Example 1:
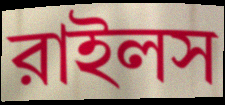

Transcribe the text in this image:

রাইলস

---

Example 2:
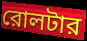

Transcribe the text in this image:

রোলটার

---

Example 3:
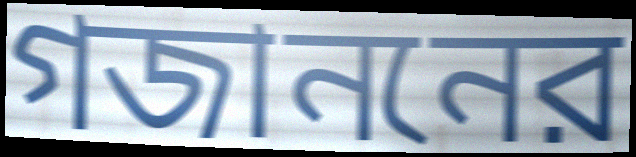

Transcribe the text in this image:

গজাননের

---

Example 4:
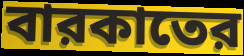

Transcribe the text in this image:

বারকাতের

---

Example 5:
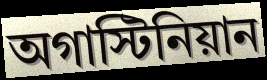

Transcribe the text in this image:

অগাস্টিনিয়ান